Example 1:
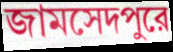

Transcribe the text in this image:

জামসেদপুরে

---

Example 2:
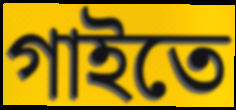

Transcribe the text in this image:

গাইতে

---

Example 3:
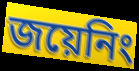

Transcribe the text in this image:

জয়েনিং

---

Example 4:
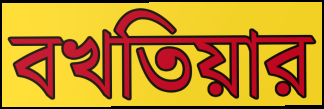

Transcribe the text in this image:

বখতিয়ার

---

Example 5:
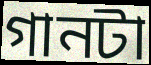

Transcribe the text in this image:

গানটা